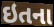
ઇતના